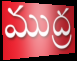
ముద్ర